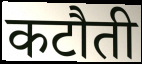
कटौती